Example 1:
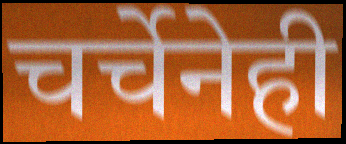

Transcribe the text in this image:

चर्चेनेही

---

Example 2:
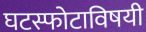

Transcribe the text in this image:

घटस्फोटाविषयी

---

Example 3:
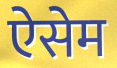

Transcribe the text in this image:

ऐसेम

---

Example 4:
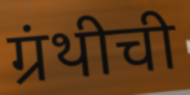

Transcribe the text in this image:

ग्रंथीची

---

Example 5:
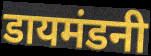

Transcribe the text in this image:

डायमंडनी